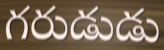
గరుడుడు